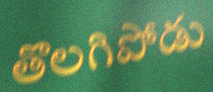
తొలగిపోడు